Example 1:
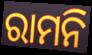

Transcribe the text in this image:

ରାମନି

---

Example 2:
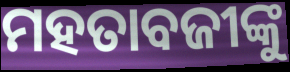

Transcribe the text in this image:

ମହତାବଜୀଙ୍କୁ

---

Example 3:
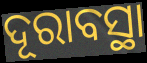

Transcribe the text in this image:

ଦୂରାବସ୍ଥା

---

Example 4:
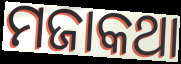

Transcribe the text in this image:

ମଜାକଥା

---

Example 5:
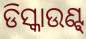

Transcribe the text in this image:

ଡିସ୍କାଉଣ୍ଟ୍